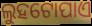
ଲୁହଟୋପାଏ